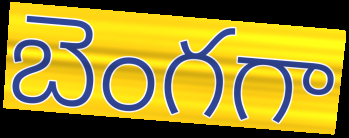
బెంగగా